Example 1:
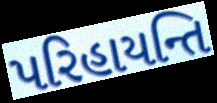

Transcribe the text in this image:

પરિહાયન્તિ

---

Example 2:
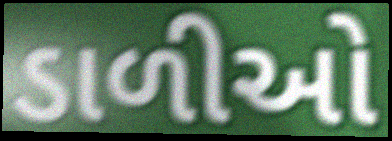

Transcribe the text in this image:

ડાળીઓ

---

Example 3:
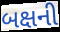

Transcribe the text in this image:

બક્ષની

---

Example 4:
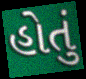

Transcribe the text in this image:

હોતું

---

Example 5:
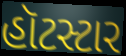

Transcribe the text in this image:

હૉટસ્ટાર